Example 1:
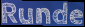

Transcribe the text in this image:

Runde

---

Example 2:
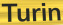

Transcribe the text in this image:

Turin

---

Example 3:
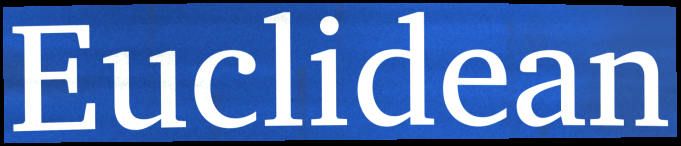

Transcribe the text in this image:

Euclidean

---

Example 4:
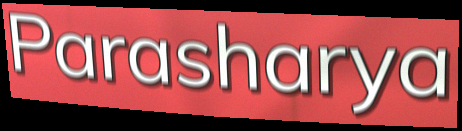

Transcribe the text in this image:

Parasharya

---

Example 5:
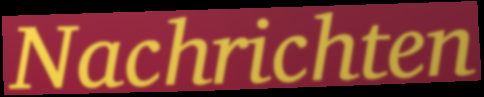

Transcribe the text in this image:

Nachrichten